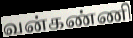
வன்கண்ணி